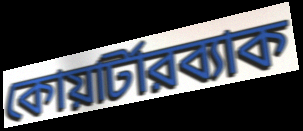
কোয়ার্টারব্যাক